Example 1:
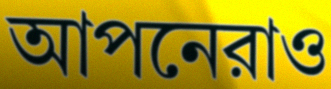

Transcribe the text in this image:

আপনেরাও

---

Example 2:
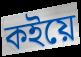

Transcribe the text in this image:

কইয়ে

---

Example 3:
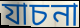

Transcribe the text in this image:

যাচনা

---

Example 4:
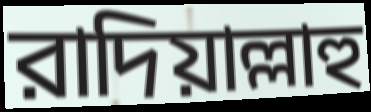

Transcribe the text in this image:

রাদিয়াল্লাহু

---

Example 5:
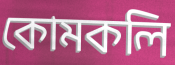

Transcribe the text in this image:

কোমকলি